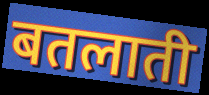
बतलाती